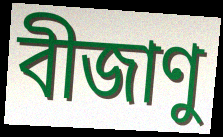
বীজাণু